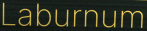
Laburnum